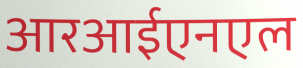
आरआईएनएल